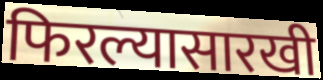
फिरल्यासारखी